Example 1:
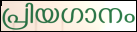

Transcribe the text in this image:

പ്രിയഗാനം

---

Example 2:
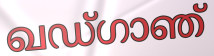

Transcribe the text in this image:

ഖഡ്ഗാഞ്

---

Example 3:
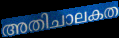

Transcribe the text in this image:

അതിചാലകത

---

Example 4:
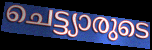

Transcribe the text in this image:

ചെട്ട്യാരുടെ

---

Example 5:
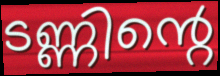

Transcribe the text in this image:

ടണ്ണിന്റെ